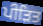
ਪੀੜਿਤ